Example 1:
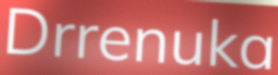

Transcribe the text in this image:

Drrenuka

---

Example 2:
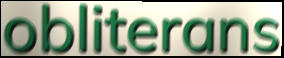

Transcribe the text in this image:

obliterans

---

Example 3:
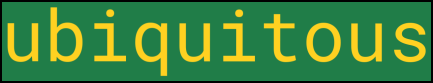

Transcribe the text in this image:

ubiquitous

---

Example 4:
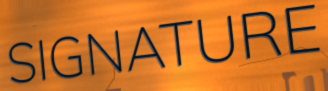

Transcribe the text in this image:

SIGNATURE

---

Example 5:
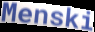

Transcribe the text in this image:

Menski